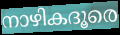
നാഴികദൂരെ